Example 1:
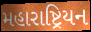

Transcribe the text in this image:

મહારાષ્ટ્રિયન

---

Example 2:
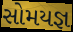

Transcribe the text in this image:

સોમયજ્ઞ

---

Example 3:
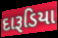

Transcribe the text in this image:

દારૂડિયા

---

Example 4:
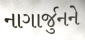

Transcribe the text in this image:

નાગાર્જુનને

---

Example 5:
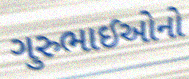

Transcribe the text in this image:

ગુરુભાઈઓનો